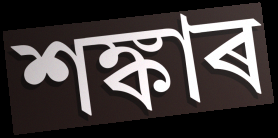
শঙ্কাৰ